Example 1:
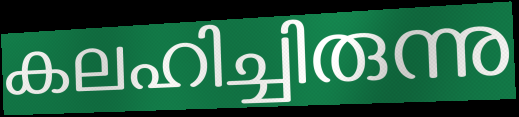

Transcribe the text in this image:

കലഹിച്ചിരുന്നു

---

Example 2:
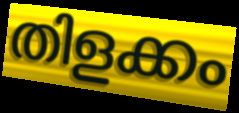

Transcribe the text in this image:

തിളക്കം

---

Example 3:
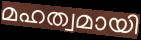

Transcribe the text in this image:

മഹത്വമായി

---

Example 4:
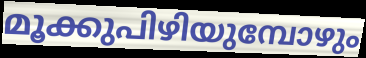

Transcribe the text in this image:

മൂക്കുപിഴിയുമ്പോഴും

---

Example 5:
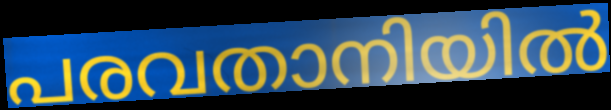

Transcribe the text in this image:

പരവതാനിയിൽ